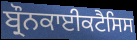
ਬ੍ਰੌਨਕਾਈਕਟੈਸਿਸ